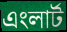
এংলার্ট